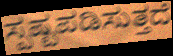
ಸ್ಪಷ್ಟಪಡಿಸುತ್ತದೆ